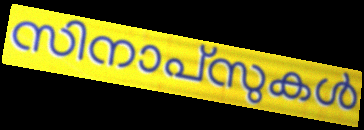
സിനാപ്സുകൾ